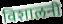
विशालनी